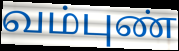
வம்புண்